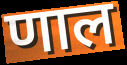
णाल